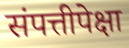
संपत्तीपेक्षा